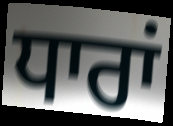
ਧਾਰਾਂ